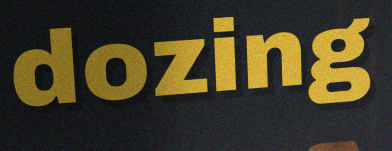
dozing